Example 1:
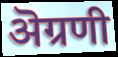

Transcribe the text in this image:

ऄग्रणी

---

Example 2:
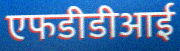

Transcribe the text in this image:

एफडीडीआई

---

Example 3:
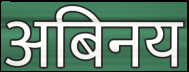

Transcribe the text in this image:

अबिनय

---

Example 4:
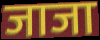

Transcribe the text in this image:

जाजा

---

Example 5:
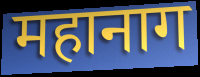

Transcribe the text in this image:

महानाग